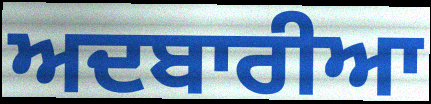
ਅਦਬਾਰੀਆ